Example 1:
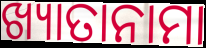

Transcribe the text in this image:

ଖ୍ୟାତାନାମା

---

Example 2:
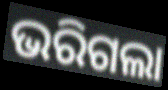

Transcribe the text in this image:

ଭରିଗଲା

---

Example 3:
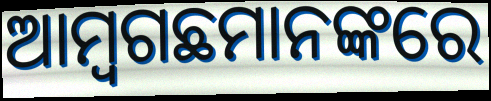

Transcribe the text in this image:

ଆମ୍ବଗଛମାନଙ୍କରେ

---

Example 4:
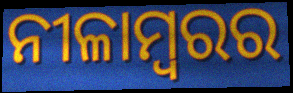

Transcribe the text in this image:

ନୀଳାମ୍ବରର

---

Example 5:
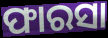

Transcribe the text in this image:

ଫାରସା